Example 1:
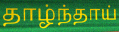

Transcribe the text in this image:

தாழ்ந்தாய்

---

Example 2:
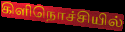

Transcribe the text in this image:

கிளிநொச்சியில்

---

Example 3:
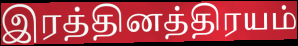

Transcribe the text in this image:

இரத்தினத்திரயம்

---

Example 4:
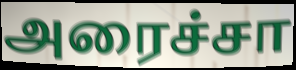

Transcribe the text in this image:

அரைச்சா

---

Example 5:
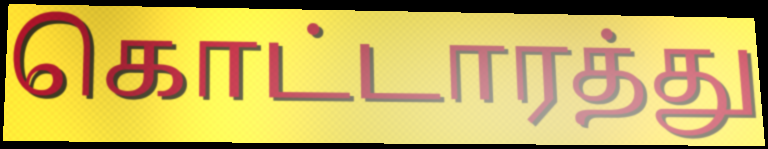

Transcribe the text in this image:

கொட்டாரத்து